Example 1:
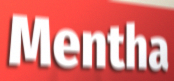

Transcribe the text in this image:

Mentha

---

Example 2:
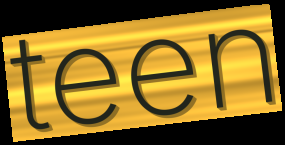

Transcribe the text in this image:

teen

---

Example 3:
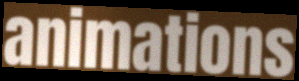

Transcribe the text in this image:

animations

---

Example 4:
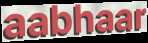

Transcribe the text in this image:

aabhaar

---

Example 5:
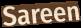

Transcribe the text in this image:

Sareen